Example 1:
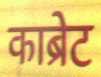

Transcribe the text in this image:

काब्रेट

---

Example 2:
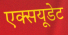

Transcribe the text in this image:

एक्सयूडेट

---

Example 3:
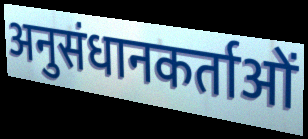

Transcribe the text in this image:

अनुसंधानकर्ताओं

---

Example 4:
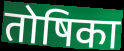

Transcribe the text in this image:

तोषिका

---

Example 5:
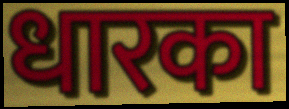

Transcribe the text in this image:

धारका